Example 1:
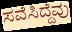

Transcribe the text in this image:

ಸವೆಸಿದ್ದೆವು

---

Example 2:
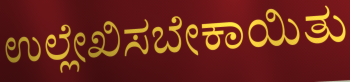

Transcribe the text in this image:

ಉಲ್ಲೇಖಿಸಬೇಕಾಯಿತು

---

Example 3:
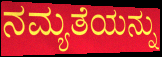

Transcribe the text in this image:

ನಮ್ಯತೆಯನ್ನು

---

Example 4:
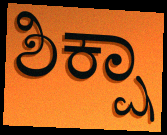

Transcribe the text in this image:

ಶಿಕ್ಷಾ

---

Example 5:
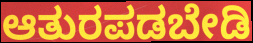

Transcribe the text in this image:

ಆತುರಪಡಬೇಡಿ